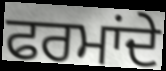
ਫਰਮਾਂਦੇ